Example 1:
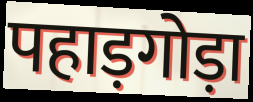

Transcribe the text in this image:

पहाड़गोड़ा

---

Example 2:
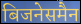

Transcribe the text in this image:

बिजनेसमैन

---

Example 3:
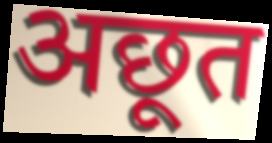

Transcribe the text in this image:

अछूत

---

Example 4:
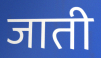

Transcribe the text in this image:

जाती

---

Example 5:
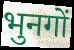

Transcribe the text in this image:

भुनगों